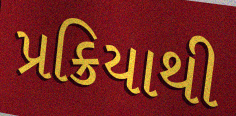
પ્રક્રિયાથી